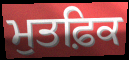
ਮੁਤਫ਼ਿਕ